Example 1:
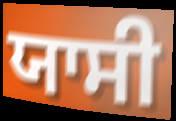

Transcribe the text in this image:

ਯਾਸੀ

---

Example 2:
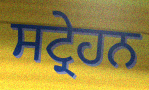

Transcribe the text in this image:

ਸਟ੍ਰੇਹਨ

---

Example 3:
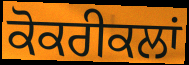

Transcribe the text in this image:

ਕੋਕਰੀਕਲਾਂ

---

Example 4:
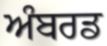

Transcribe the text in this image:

ਅੰਬਰਡ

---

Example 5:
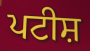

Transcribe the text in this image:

ਪਟੀਸ਼